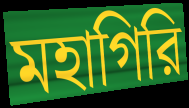
মহাগিরি